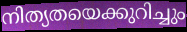
നിത്യതയെക്കുറിച്ചും